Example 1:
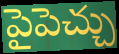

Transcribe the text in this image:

పైపెచ్చు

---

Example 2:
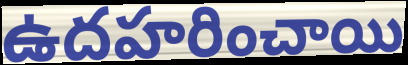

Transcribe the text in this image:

ఉదహరించాయి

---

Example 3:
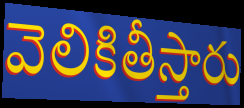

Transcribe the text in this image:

వెలికితీస్తారు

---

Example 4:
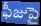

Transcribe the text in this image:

ఫీజుపై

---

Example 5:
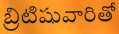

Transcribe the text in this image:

బ్రిటిషువారితో